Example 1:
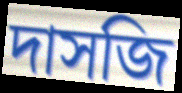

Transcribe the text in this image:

দাসজি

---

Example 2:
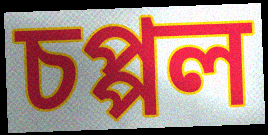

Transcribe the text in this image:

চপ্পল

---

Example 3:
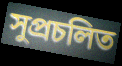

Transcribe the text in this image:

সুপ্রচলিত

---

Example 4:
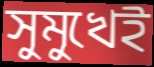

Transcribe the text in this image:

সুমুখেই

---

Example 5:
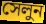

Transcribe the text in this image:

সেলুন